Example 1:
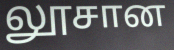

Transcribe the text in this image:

லூசான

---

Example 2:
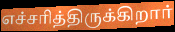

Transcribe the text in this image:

எச்சரித்திருக்கிறார்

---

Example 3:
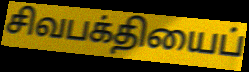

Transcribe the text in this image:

சிவபக்தியைப்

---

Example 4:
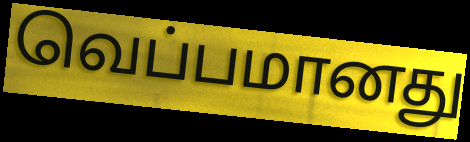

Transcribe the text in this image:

வெப்பமானது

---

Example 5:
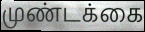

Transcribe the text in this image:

முண்டக்கை